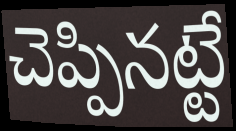
చెప్పినట్టే